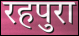
रहपुरा